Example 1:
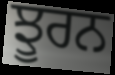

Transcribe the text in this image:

ਝੂਰਨ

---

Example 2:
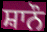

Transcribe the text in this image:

ਸ਼ਾਨੌ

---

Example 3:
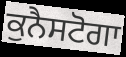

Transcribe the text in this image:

ਕੁਨੈਸਟੋਗਾ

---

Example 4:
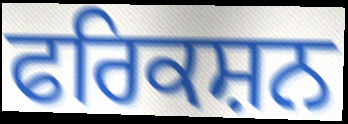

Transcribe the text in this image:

ਫਰਿਕਸ਼ਨ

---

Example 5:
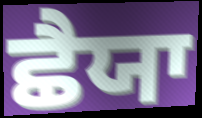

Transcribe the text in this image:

ਛੈਯਾ